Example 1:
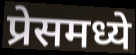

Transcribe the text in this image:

प्रेसमध्ये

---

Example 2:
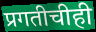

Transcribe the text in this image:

प्रगतीचीही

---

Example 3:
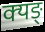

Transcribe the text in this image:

क्यङ्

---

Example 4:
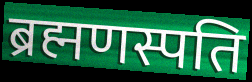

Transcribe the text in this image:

ब्रह्मणस्पति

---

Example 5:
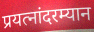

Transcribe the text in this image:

प्रयत्नांदरम्यान